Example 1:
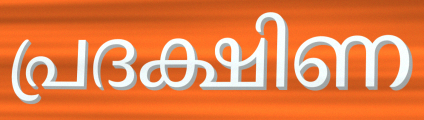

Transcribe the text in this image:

പ്രദക്ഷിണ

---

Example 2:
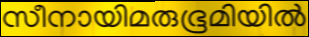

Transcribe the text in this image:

സീനായിമരുഭൂമിയിൽ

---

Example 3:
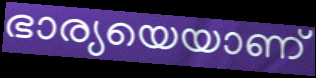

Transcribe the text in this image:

ഭാര്യയെയാണ്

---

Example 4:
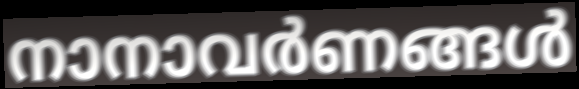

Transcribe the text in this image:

നാനാവർണങ്ങൾ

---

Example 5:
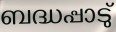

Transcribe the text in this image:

ബദ്ധപ്പാടു്